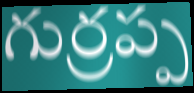
గుర్రప్ప